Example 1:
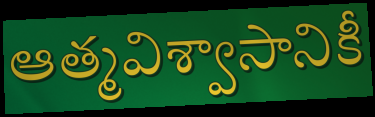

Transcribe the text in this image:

ఆత్మవిశ్వాసానికీ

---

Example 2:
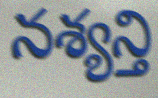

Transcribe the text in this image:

నశ్యన్తి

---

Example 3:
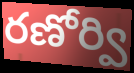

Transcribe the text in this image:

రణోర్వి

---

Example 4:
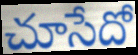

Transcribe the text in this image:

చూసేదో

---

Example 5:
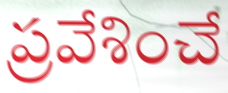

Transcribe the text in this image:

ప్రవేశించే